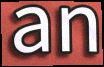
an